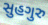
સુહગુરુ